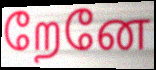
றேனே